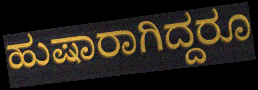
ಹುಷಾರಾಗಿದ್ದರೂ